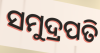
ସମୁଦ୍ରପତି